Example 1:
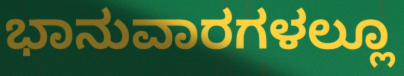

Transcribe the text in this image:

ಭಾನುವಾರಗಳಲ್ಲೂ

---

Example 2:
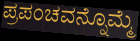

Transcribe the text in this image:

ಪ್ರಪಂಚವನ್ನೊಮ್ಮೆ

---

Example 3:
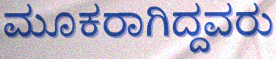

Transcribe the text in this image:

ಮೂಕರಾಗಿದ್ದವರು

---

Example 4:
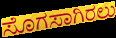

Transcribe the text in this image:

ಸೊಗಸಾಗಿರಲು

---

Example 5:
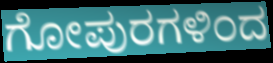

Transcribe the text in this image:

ಗೋಪುರಗಳಿಂದ